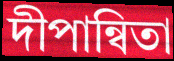
দীপান্বিতা